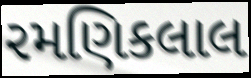
રમણિકલાલ